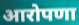
आरोपणा